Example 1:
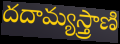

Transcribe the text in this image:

దదామ్యస్త్రాణి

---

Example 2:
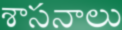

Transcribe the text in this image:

శాసనాలు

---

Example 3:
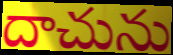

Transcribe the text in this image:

దాచును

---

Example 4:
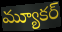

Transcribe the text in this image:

మ్యూకర్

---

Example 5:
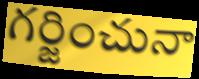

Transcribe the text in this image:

గర్జించునా